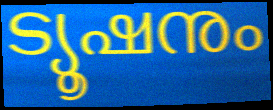
ട്യൂഷനും